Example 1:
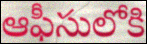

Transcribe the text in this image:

ఆఫీసులోకి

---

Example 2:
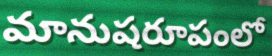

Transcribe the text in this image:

మానుషరూపంలో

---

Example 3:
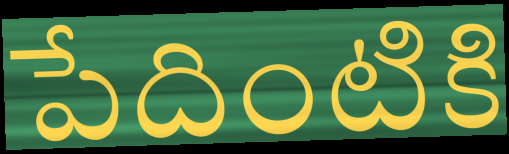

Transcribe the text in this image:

పేదింటికి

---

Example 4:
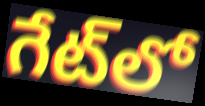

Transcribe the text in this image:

గేట్‌లో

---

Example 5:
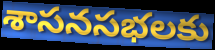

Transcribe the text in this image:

శాసనసభలకు